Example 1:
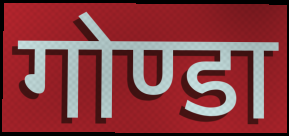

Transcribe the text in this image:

गोण्डा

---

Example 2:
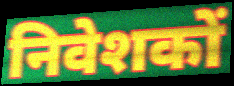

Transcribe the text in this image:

निवेशकों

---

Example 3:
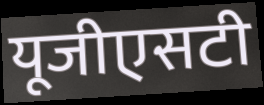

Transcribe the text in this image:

यूजीएसटी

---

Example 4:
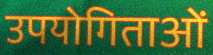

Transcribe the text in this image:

उपयोगिताओं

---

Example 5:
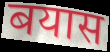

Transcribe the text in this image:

बयास